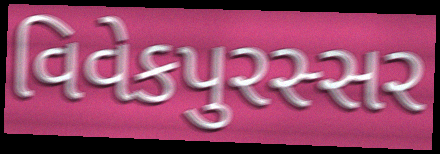
વિવેકપુરસ્સર